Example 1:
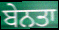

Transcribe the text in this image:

ਬੇਨਤਾ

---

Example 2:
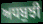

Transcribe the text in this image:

ਅਧਬੁਝੀ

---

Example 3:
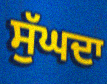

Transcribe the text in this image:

ਸੁੱਘਦਾ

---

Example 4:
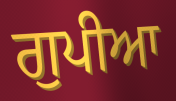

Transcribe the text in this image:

ਗੁਪੀਆ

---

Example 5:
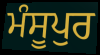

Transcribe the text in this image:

ਮੰਸੂਪੁਰ